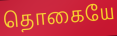
தொகையே